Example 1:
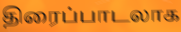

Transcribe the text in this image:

திரைப்பாடலாக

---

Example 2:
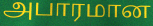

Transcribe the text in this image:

அபாரமான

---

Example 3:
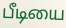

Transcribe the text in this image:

பீடியை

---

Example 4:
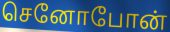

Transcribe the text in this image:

செனோபோன்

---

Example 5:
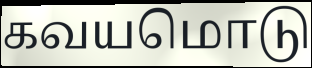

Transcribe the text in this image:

கவயமொடு